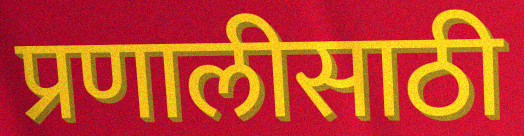
प्रणालीसाठी